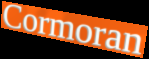
Cormoran